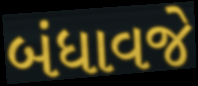
બંધાવજે